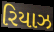
રિયાઝ